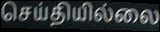
செய்தியில்லை